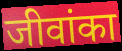
जीवांका